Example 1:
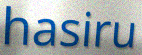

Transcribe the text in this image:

hasiru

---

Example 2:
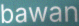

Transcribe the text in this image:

bawan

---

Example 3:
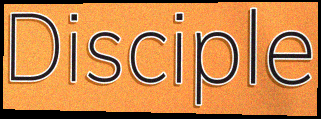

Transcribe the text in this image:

Disciple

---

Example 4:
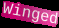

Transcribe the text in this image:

Winged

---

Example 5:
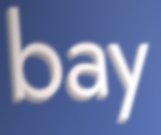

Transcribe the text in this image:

bay